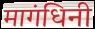
मागंधिनी